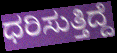
ಧರಿಸುತ್ತಿದ್ದೆ